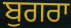
ਬੁਗਰਾ